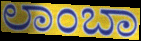
ಲಾಂಬಾ